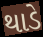
થાડે